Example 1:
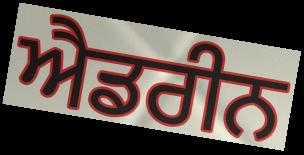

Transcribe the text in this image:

ਐਡਰੀਨ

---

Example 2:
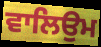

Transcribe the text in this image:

ਵਾਲਿਉਮ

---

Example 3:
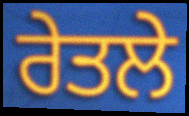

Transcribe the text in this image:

ਰੇਤਲੇ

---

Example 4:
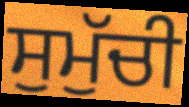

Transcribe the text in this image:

ਸੁਮੁੱਚੀ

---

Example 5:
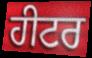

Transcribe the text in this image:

ਹੀਟਰ